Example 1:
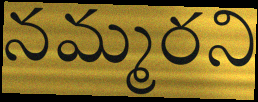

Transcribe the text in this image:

నమ్మరని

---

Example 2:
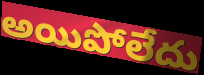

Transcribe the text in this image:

అయిపోలేదు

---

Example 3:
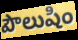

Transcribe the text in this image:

పౌలుషిం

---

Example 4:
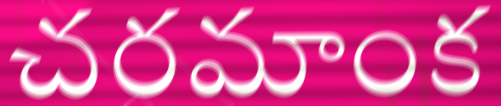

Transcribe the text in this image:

చరమాంక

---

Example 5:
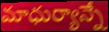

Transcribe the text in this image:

మాధుర్యాన్నే